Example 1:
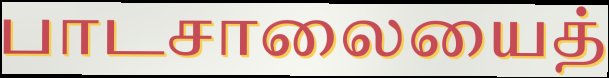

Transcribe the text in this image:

பாடசாலையைத்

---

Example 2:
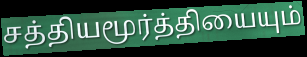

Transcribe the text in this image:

சத்தியமூர்த்தியையும்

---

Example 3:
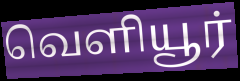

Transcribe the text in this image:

வெளியூர்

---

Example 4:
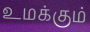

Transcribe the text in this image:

உமக்கும்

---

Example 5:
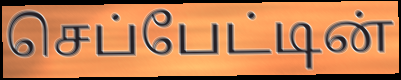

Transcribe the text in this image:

செப்பேட்டின்